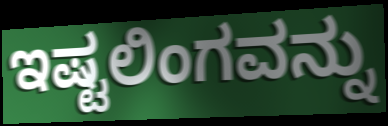
ಇಷ್ಟಲಿಂಗವನ್ನು